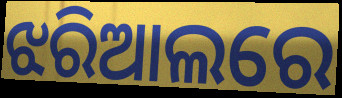
ଝରିଆଲରେ